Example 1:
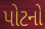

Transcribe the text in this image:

પોટનો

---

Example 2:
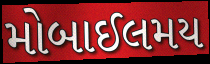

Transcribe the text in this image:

મોબાઈલમય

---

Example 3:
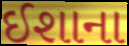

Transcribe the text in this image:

ઈશાના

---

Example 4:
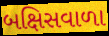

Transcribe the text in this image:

બક્ષિસવાળા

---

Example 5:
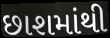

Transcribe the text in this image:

છાશમાંથી